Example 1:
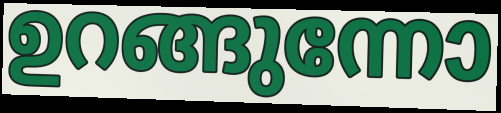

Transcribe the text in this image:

ഉറങ്ങുന്നോ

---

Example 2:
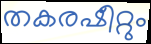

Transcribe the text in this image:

തകരഷീറ്റും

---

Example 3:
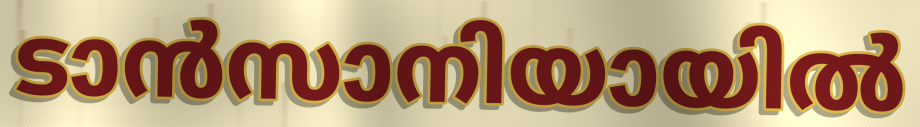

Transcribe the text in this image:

ടാൻസാനിയായിൽ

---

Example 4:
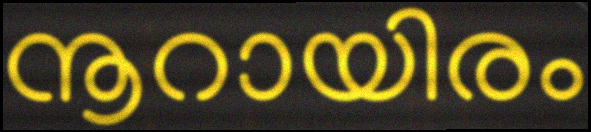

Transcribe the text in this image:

നൂറായിരം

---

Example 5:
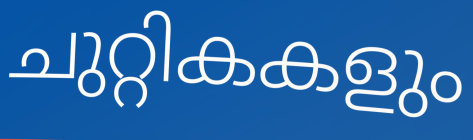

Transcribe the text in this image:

ചുറ്റികകളും